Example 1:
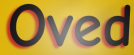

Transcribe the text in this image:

Oved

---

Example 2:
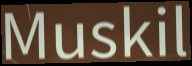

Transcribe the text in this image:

Muskil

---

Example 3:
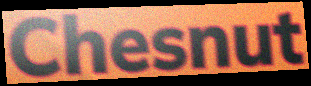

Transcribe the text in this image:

Chesnut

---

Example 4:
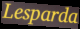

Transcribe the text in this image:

Lesparda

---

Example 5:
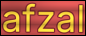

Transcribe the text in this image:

afzal